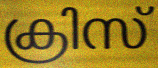
ക്രിസ്